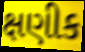
ક્ષણીક